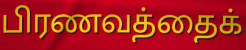
பிரணவத்தைக்